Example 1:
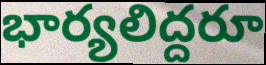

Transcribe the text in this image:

భార్యలిద్దరూ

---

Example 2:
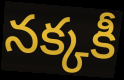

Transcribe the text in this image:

నక్కకీ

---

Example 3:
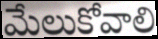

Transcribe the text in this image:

మేలుకోవాలి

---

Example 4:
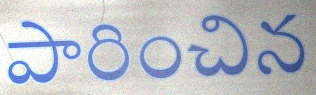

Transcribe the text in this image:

పారించిన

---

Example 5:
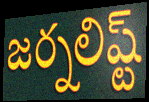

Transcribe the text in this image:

జర్నలిష్ట్